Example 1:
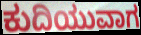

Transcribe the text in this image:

ಕುದಿಯುವಾಗ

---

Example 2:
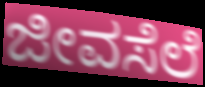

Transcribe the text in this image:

ಜೀವಸೆಲೆ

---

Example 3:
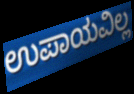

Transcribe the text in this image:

ಉಪಾಯವಿಲ್ಲ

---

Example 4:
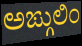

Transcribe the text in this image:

ಅಙ್ಗುಲಿಂ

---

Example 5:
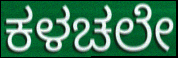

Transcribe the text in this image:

ಕಳಚಲೇ